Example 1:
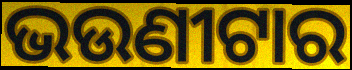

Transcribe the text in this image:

ଭଉଣୀଟାର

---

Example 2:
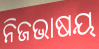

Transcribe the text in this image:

ନିଜଭାଷୟ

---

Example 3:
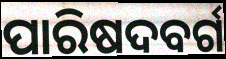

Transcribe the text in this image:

ପାରିଷଦବର୍ଗ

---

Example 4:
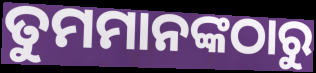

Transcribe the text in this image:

ତୁମମାନଙ୍କଠାରୁ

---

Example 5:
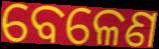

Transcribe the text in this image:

ବେଳେଣ